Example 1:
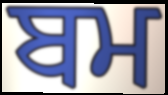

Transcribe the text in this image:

ਬਮ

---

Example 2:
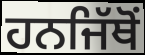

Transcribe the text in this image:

ਹਨਜਿੱਥੋਂ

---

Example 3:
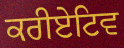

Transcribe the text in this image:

ਕਰੀਏਟਿਵ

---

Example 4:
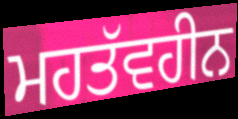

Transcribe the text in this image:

ਮਹਤੱਵਹੀਨ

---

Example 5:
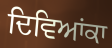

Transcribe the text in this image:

ਦਿਵਿਆਂਕਾ